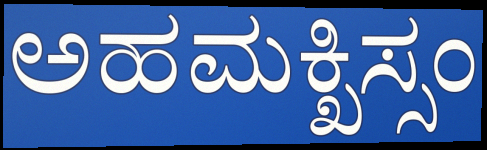
ಅಹಮಕ್ಖಿಸ್ಸಂ